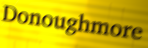
Donoughmore